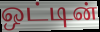
ஒட்டின்